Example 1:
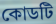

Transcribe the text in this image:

কোডটি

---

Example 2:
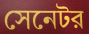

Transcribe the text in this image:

সেনেটর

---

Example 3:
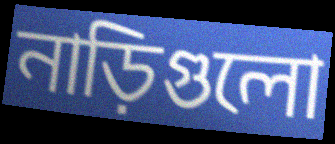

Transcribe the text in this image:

নাড়িগুলো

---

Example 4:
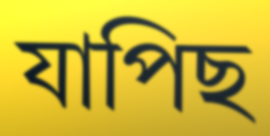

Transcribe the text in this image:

যাপিছ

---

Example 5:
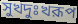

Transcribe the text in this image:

সুখদুঃখরূপ